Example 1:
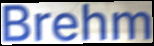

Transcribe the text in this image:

Brehm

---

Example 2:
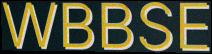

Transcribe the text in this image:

WBBSE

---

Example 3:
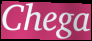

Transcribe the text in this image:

Chega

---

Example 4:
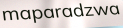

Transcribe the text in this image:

maparadzwa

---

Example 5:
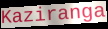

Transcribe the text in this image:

Kaziranga